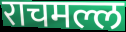
राचमल्ल